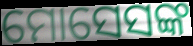
ମୋସେସଙ୍କ